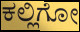
ಕಲ್ಲಿಗೋ